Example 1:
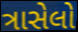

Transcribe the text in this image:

ત્રાસેલો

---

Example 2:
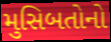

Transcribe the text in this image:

મુસિબતોનો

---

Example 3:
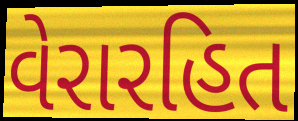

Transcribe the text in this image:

વેરારહિત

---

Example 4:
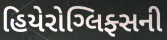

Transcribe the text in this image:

હિયેરોગ્લિફ્સની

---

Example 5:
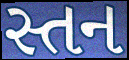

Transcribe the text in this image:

સ્તન